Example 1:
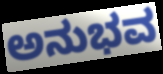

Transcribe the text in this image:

ಅನುಭವ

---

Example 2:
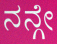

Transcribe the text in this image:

ನನ್ಗೇ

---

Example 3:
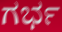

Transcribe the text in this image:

ಗರ್ಭ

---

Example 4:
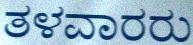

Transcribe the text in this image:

ತಳವಾರರು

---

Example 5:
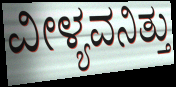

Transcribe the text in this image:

ವೀಳ್ಯವನಿತ್ತು